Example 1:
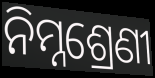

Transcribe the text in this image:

ନିମ୍ନଶ୍ରେଣୀ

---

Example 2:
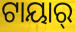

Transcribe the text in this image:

ଟାୟାର୍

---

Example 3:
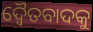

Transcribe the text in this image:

ଦ୍ୱୈତବାଦକୁ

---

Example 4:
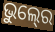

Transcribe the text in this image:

ଭୁଲ୍‍ରେ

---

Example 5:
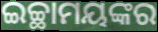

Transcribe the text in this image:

ଇଚ୍ଛାମୟଙ୍କର